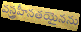
వస్త్రహీనతయైనను